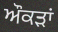
ਔਕਡ਼ਾਂ